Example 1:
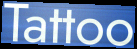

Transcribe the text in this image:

Tattoo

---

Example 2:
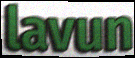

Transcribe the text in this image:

lavun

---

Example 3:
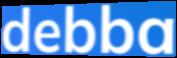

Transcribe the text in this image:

debba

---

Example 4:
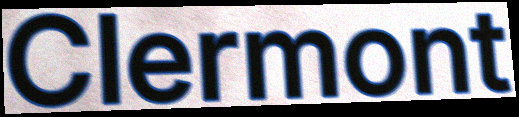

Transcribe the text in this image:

Clermont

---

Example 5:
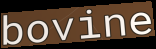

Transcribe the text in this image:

bovine